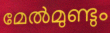
മേൽമുണ്ടും